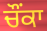
ਚੌਂਕਾ